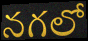
నగలో